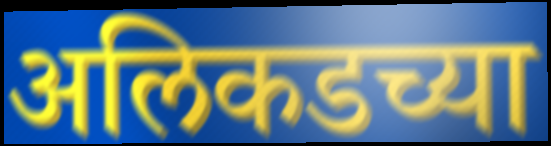
अलिकडच्या